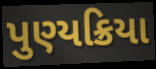
પુણ્યક્રિયા